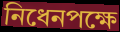
নিধেনপক্ষে